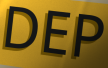
DEP